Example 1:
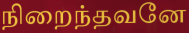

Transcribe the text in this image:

நிறைந்தவனே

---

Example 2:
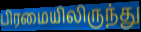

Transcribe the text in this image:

பிரமையிலிருந்து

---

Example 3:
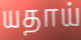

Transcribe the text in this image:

யதாய்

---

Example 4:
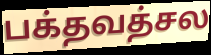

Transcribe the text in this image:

பக்தவத்சல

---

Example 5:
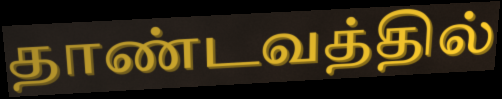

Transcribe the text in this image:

தாண்டவத்தில்